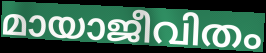
മായാജീവിതം